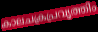
കാലചക്രപ്രവൃത്തിം